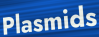
Plasmids